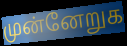
முன்னேறுக